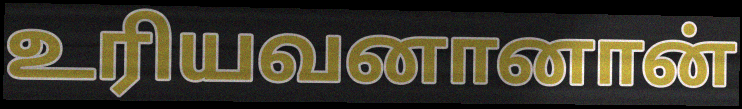
உரியவனானான்